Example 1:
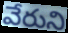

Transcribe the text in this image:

వేరుని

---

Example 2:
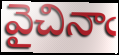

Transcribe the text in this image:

వైచినాఁ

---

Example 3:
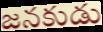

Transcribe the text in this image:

జనకుడు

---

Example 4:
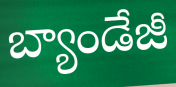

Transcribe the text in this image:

బ్యాండేజీ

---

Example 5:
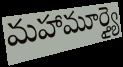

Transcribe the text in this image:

మహామూర్త్యై